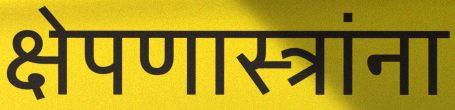
क्षेपणास्त्रांना